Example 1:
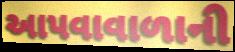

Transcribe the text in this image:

આપવાવાળાની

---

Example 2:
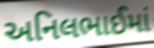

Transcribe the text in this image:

અનિલભાઈમાં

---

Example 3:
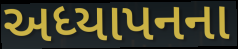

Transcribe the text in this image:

અધ્યાપનના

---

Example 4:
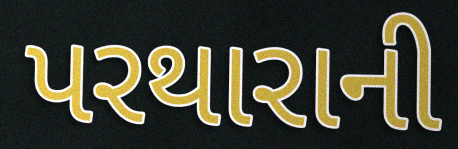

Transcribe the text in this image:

પરથારાની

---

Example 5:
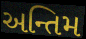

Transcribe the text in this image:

અન્તિમ